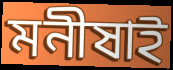
মনীষাই